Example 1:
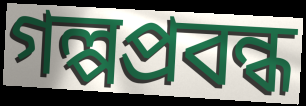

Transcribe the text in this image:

গল্পপ্রবন্ধ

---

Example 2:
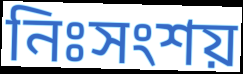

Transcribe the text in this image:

নিঃসংশয়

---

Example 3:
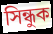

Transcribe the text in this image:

সিন্ধুক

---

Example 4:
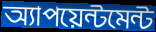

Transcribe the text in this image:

অ্যাপয়েন্টমেন্ট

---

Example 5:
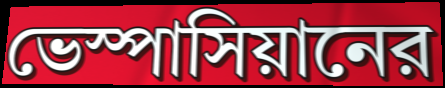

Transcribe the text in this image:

ভেস্পাসিয়ানের